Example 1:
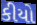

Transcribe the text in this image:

કીયો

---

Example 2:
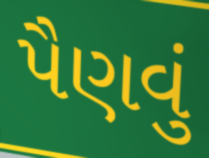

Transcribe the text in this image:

પૈણવું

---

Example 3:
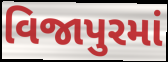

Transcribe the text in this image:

વિજાપુરમાં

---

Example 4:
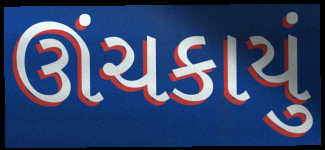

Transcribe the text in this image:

ઊંચકાયું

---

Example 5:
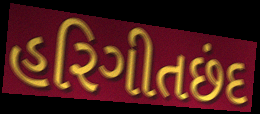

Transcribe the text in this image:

હરિગીતછંદ